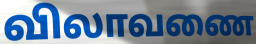
விலாவணை